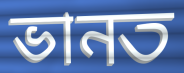
ভানত